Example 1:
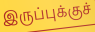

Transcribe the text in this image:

இருப்புக்குச்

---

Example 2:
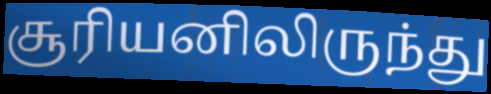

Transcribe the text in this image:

சூரியனிலிருந்து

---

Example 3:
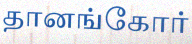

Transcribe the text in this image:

தானங்கோர்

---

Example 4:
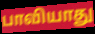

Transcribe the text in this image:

பாவியாது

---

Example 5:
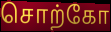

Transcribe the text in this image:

சொற்கோ